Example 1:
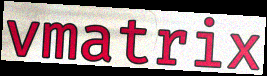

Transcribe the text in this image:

vmatrix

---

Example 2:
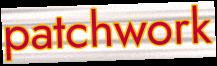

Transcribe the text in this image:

patchwork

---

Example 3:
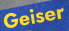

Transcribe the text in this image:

Geiser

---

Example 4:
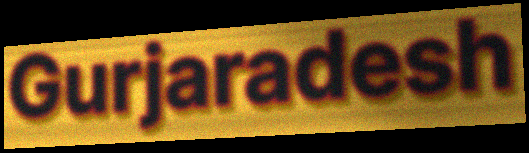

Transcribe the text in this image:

Gurjaradesh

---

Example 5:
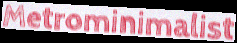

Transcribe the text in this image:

Metrominimalist